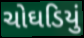
ચોઘડિયું